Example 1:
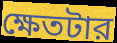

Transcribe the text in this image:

ক্ষেতটার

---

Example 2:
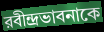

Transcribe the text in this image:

রবীন্দ্রভাবনাকে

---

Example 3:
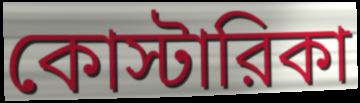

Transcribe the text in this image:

কোস্টারিকা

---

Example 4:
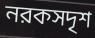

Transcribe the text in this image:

নরকসদৃশ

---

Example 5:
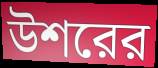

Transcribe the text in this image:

উশরের